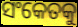
ସଂକେତକୁ